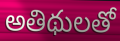
అతిథులతో